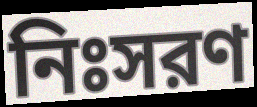
নিঃসরণ